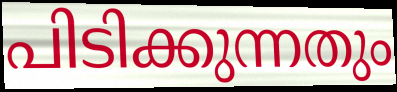
പിടിക്കുന്നതും